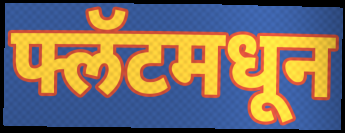
फ्लॅटमधून